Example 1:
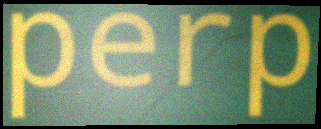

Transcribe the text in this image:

perp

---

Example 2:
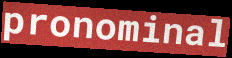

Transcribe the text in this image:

pronominal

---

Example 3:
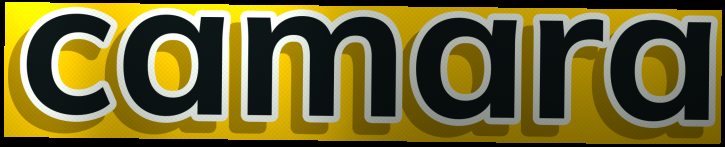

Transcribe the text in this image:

camara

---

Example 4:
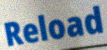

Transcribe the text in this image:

Reload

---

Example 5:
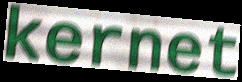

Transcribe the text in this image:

kernet